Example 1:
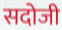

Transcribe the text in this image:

सदोजी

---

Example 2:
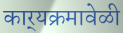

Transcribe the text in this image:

कार्यक्रमावेळी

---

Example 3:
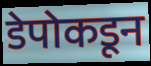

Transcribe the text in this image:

डेपोकडून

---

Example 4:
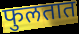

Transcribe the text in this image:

फुलतात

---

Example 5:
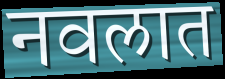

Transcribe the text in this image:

नवलात